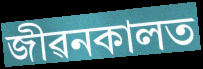
জীৱনকালত